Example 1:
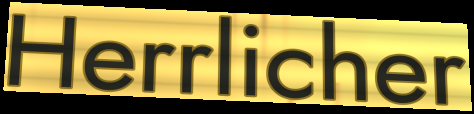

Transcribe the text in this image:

Herrlicher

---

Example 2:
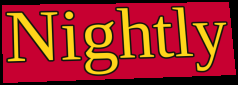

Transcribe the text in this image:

Nightly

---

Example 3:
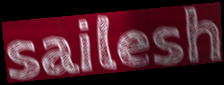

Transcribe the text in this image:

sailesh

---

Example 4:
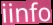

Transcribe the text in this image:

iinfo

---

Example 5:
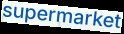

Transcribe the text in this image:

supermarket